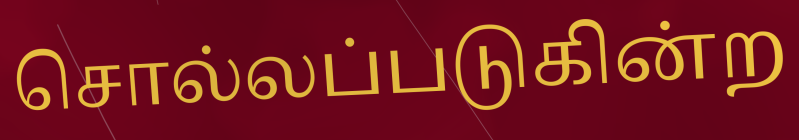
சொல்லப்படுகின்ற